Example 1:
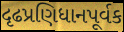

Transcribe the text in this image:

દૃઢપ્રણિધાનપૂર્વક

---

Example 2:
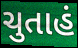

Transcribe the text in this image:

ચુતાહં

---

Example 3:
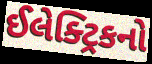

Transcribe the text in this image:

ઈલેક્ટ્રિકનો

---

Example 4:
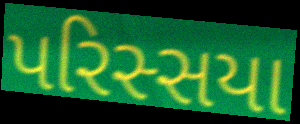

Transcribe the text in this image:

પરિસ્સયા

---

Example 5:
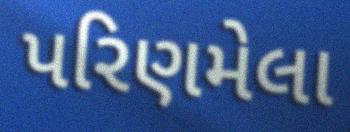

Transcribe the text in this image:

પરિણમેલા